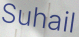
Suhail